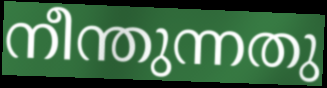
നീന്തുന്നതു